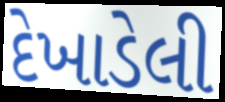
દેખાડેલી